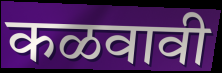
कळवावी